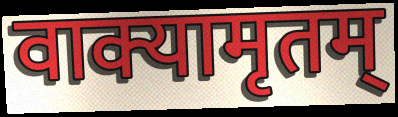
वाक्यामृतम्